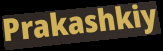
Prakashkiy